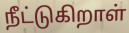
நீட்டுகிறாள்